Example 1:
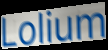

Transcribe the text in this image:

Lolium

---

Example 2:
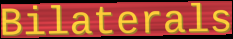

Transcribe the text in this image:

Bilaterals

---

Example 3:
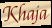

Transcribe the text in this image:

Khaja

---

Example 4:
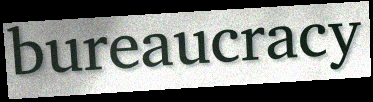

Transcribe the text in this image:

bureaucracy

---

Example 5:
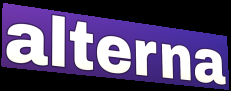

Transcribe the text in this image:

alterna